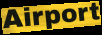
Airport